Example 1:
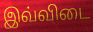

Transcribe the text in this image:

இவ்விடை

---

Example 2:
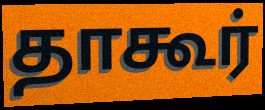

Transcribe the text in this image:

தாகூர்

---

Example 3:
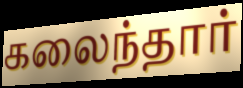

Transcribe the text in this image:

கலைந்தார்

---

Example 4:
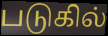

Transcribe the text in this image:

படுகில்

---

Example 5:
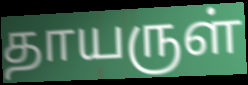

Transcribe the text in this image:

தாயருள்